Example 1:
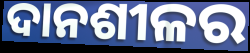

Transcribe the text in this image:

ଦାନଶୀଳର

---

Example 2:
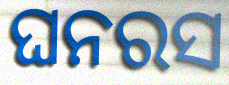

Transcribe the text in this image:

ଘନରସ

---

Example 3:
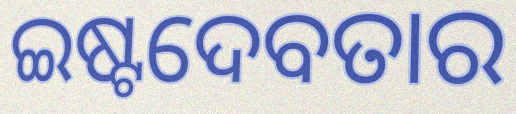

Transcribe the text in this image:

ଇଷ୍ଟଦେବତାର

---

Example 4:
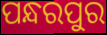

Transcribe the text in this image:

ପନ୍ଧରପୁର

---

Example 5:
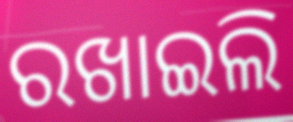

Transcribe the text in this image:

ରଖାଇଲି